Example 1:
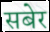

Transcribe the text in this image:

सबेर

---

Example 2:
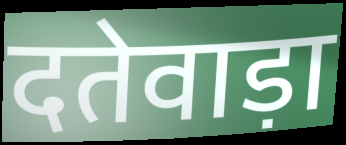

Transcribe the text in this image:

दतेवाड़ा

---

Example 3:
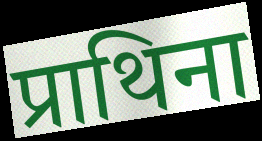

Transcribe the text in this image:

प्राथिना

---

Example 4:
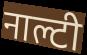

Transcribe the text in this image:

नाल्टी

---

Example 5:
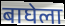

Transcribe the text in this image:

बाघेला